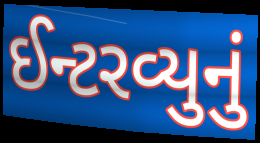
ઈન્ટરવ્યુનું